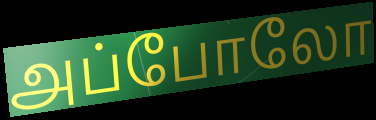
அப்போலோ